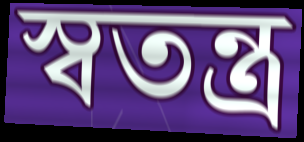
স্বতন্ত্র